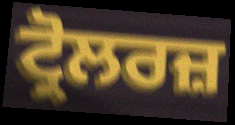
ਟ੍ਰੋਲਰਜ਼